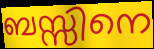
ബസ്സിനെ